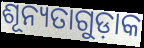
ଶୂନ୍ୟତାଗୁଡ଼ାକ